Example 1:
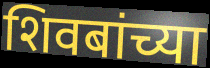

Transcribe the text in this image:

शिवबांच्या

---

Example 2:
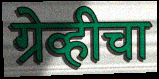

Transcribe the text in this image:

ग्रेव्हीचा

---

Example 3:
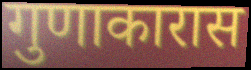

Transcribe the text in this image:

गुणाकारास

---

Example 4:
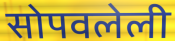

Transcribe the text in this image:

सोपवलेली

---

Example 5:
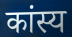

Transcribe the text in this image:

कांस्य